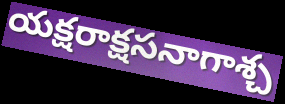
యక్షరాక్షసనాగాశ్చ